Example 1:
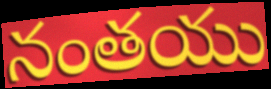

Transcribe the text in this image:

నంతయు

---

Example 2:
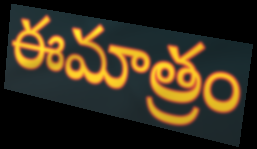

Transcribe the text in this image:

ఈమాత్రం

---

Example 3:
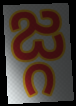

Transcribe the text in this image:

జ్గ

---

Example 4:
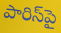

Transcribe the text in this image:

పారిస్‌పై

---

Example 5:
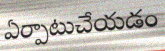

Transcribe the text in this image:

ఏర్పాటుచేయడం